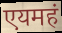
एयमहं